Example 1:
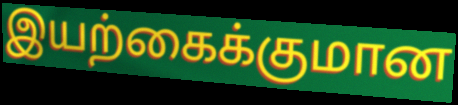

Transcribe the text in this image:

இயற்கைக்குமான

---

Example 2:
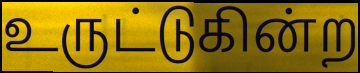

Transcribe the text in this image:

உருட்டுகின்ற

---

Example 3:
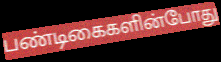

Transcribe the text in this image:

பண்டிகைகளின்போது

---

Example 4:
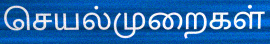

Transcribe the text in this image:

செயல்முறைகள்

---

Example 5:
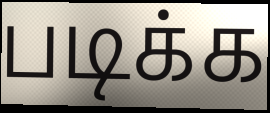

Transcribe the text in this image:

படிக்க